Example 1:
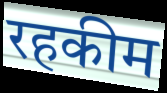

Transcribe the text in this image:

रहकीम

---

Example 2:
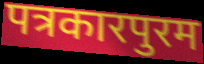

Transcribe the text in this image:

पत्रकारपुरम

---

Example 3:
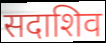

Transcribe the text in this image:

सदाशिव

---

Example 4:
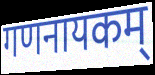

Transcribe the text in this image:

गणनायकम्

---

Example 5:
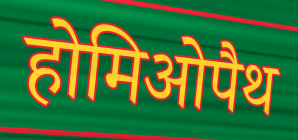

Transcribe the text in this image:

होमिओपैथ